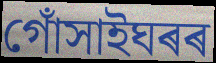
গোঁসাইঘৰৰ